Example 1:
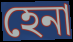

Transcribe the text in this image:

হেনা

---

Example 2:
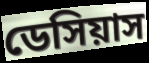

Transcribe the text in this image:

ডেসিয়াস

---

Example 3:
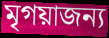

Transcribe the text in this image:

মৃগয়াজন্য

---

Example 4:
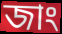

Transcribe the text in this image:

জাং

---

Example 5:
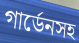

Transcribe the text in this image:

গার্ডেনসহ